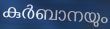
കുർബാനയും